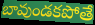
బావుండకపోతే